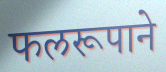
फलरूपाने